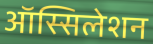
ऑस्सिलेशन